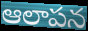
ఆలాపన